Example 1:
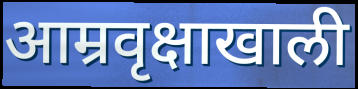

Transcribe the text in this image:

आम्रवृक्षाखाली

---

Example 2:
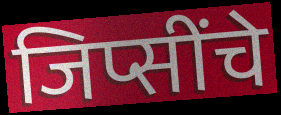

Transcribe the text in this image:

जिप्सींचे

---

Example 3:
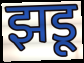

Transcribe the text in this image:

झडू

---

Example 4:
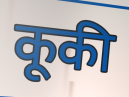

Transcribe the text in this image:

कूकी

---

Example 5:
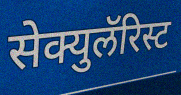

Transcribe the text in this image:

सेक्युलॅरिस्ट